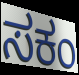
ಸಕಂ